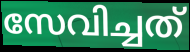
സേവിച്ചത്